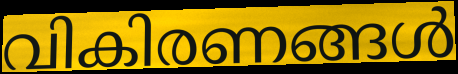
വികിരണങ്ങൾ